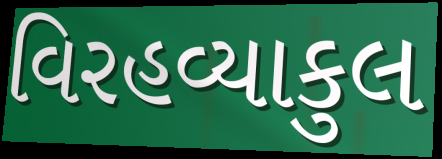
વિરહવ્યાકુલ